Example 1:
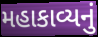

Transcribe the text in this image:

મહાકાવ્યનું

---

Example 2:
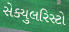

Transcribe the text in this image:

સેક્યુલરિસ્ટો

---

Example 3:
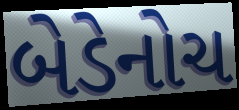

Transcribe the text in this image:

બેડેનોચ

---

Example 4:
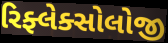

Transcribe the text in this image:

રિફ્લેક્સોલોજી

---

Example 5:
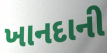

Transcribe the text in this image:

ખાનદાની